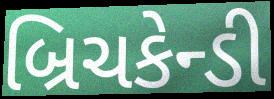
બ્રિચકેન્ડી